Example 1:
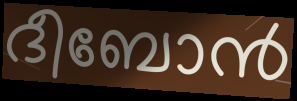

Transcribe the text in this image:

ദീബോൻ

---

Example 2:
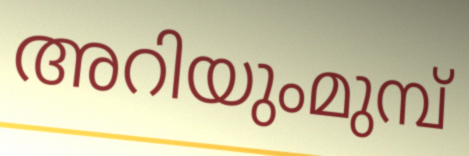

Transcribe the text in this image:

അറിയുംമുമ്പ്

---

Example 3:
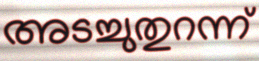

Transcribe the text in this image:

അടച്ചുതുറന്ന്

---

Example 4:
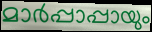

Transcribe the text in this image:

മാർപ്പാപ്പായും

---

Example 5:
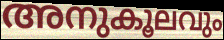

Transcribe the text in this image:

അനുകൂലവും